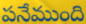
పనేముంది